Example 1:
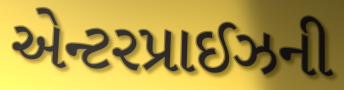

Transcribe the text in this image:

એન્ટરપ્રાઈઝની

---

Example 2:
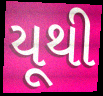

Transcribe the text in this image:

યૂથી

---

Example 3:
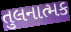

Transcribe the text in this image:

તુલનાત્મક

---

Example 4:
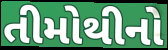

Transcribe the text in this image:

તીમોથીનો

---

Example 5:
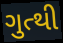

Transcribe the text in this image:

ગુત્થી